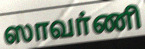
ஸாவர்ணி